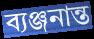
ব্যঞ্জনান্ত